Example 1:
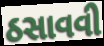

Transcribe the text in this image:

ઠસાવવી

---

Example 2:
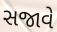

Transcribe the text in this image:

સજાવે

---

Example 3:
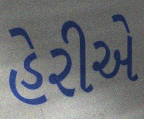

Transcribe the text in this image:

હેરીએ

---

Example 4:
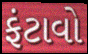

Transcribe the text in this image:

ફંટાવો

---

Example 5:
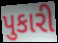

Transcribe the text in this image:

પુકારી